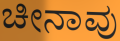
ಚೀನಾವು